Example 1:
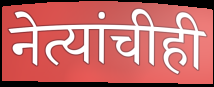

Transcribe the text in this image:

नेत्यांचीही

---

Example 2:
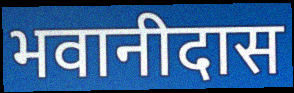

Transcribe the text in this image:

भवानीदास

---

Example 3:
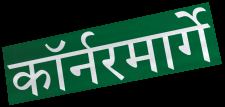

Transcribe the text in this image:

कॉर्नरमार्गे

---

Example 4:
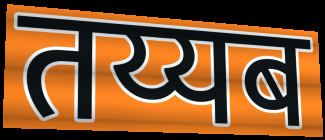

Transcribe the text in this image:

तय्यब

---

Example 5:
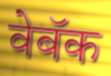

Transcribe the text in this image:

वेबॅक